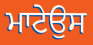
ਮਾਟੇਉਸ